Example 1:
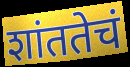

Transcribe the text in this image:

शांततेचं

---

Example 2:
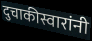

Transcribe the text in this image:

दुचाकीस्वारांनी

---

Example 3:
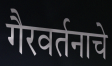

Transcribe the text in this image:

गैरवर्तनाचे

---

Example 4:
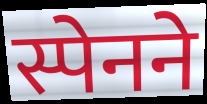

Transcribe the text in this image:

स्पेनने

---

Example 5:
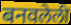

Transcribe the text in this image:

बनवलेली